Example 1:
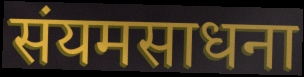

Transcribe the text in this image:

संयमसाधना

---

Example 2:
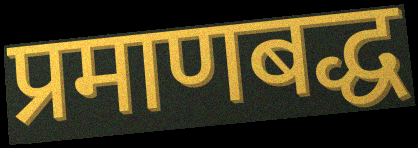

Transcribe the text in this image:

प्रमाणबद्ध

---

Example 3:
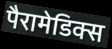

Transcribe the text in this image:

पैरामेडिक्स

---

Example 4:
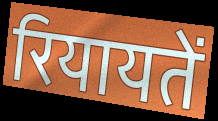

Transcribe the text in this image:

रियायतें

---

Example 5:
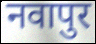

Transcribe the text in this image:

नवापुर